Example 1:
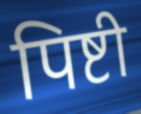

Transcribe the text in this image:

पिष्टी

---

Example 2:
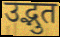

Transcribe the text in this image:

उद्भुत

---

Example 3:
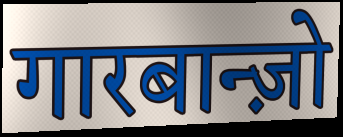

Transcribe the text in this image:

गारबान्ज़ो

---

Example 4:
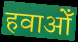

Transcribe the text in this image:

हवाओँ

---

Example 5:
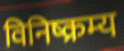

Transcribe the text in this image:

विनिष्क्रम्य